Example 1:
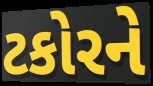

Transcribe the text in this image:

ટકોરને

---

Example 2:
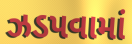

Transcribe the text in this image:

ઝડપવામાં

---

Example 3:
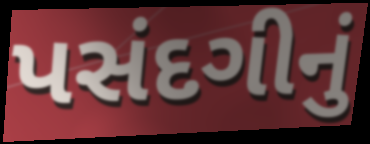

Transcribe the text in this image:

પસંદગીનું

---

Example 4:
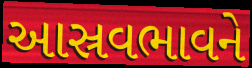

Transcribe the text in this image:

આસ્રવભાવને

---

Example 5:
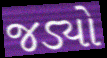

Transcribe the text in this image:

જડ્યો